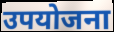
उपयोजना